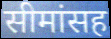
सीमांसह